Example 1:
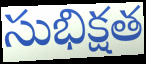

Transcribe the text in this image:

సుభిక్షత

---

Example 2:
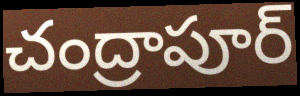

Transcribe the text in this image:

చంద్రాపూర్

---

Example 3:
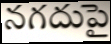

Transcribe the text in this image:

నగదుపై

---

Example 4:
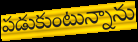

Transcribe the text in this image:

పడుకుంటున్నాను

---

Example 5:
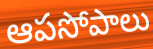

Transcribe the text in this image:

ఆపసోపాలు